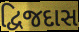
દ્વિજદાસ